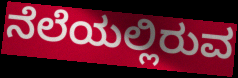
ನೆಲೆಯಲ್ಲಿರುವ